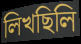
লিখছিলি